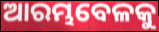
ଆରମ୍ଭବେଳକୁ